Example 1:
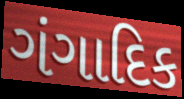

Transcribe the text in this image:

ગંગાદિક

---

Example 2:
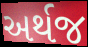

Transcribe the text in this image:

અર્થજ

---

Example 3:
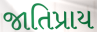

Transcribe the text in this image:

જાતિપ્રાય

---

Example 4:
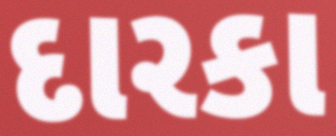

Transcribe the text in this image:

દારકા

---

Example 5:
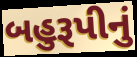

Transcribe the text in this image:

બહુરૂપીનું